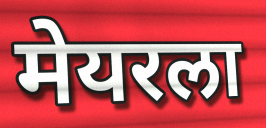
मेयरला